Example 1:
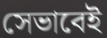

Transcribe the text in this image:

সেভাবেই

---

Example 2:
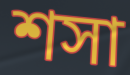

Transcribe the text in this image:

শসা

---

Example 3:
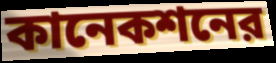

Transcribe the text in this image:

কানেকশনের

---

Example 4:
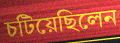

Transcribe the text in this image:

চটিয়েছিলেন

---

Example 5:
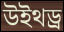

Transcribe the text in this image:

উইথড্র